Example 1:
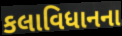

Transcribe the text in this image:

કલાવિધાનના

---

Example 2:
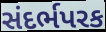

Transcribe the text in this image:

સંદર્ભપરક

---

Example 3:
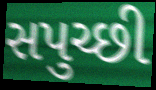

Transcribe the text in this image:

સપુચ્છી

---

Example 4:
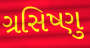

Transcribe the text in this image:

ગ્રસિષ્ણુ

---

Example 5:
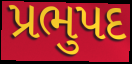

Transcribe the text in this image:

પ્રભુપદ